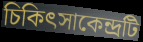
চিকিৎসাকেন্দ্রটি